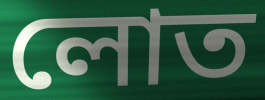
লোত